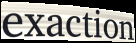
exaction